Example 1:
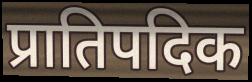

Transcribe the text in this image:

प्रातिपदिक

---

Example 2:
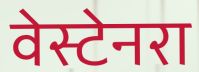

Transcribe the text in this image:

वेस्टेनरा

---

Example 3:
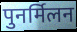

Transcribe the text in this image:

पुनर्मिलन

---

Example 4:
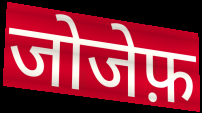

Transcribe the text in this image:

जोजेफ़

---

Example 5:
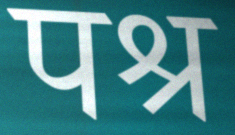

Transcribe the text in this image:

पश्र